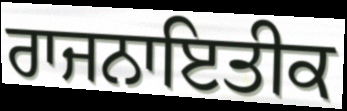
ਰਾਜਨਾਇਤੀਕ